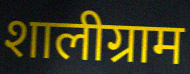
शालीग्राम